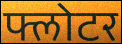
फ्लोटर